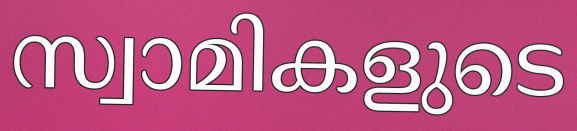
സ്വാമികളുടെ